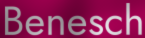
Benesch